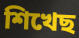
শিখেছ